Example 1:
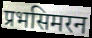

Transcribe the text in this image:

प्रभसिमरन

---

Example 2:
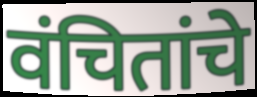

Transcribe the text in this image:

वंचितांचे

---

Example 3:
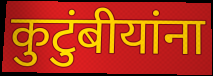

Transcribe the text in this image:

कुटुंबीयांना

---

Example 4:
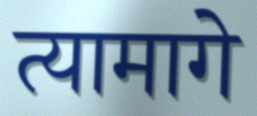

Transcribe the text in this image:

त्यामागे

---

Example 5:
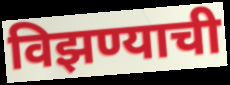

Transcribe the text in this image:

विझण्याची